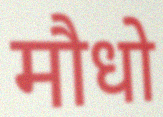
मौधो